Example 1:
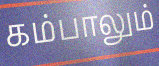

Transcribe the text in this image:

கம்பாலும்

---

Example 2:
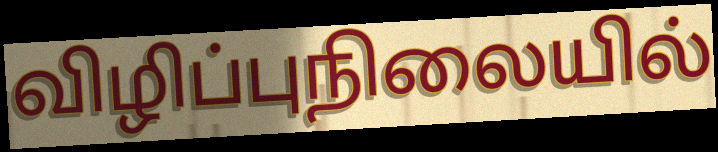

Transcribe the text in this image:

விழிப்புநிலையில்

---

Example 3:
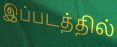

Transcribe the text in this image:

இப்படத்தில்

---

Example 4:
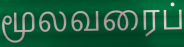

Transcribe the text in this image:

மூலவரைப்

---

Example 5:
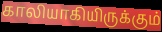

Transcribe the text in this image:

காலியாகியிருக்கும்